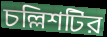
চল্লিশটির